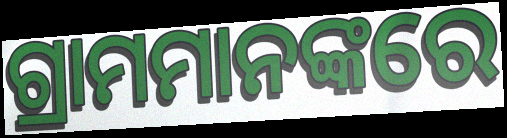
ଗ୍ରାମମାନଙ୍କରେ